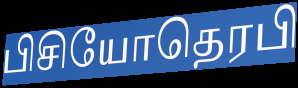
பிசியோதெரபி